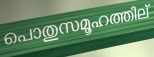
പൊതുസമൂഹത്തില്